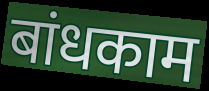
बांधकाम